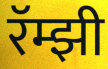
रॅम्झी